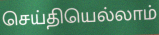
செய்தியெல்லாம்